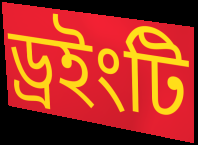
ড্রইংটি